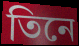
তিনে